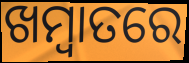
ଖମ୍ବାତରେ